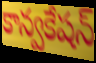
కాన్వకేషన్